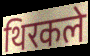
थिरकले